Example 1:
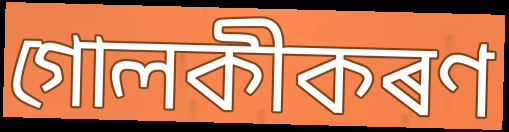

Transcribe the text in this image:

গোলকীকৰণ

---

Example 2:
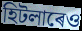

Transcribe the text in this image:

হিটলাৰেও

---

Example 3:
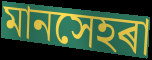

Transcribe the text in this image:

মানসেহৰা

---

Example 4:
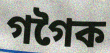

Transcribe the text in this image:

গগৈক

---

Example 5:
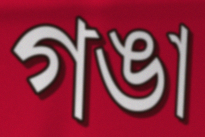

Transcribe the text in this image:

গঙা